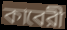
কাবেরী